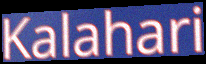
Kalahari